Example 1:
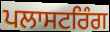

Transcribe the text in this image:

ਪਲਾਸਟਰਿੰਗ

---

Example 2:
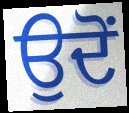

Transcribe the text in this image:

ਉਦੋੰ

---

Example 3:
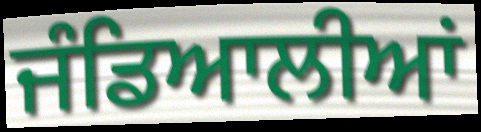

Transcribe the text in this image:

ਜੰਡਿਆਲੀਆਂ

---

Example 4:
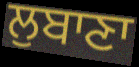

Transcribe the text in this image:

ਲੁਬਾਣਾ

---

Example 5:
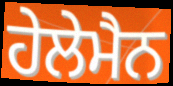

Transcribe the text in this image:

ਹੇਲੇਮੈਨ